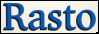
Rasto